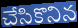
చేసికొనిన